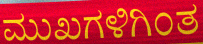
ಮುಖಗಳಿಗಿಂತ